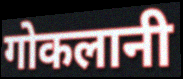
गोकलानी